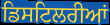
ਡਿਸਟਿਲਰੀਆਂ